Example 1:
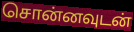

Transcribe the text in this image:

சொன்னவுடன்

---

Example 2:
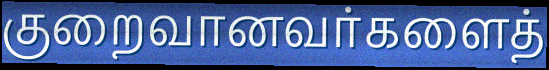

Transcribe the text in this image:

குறைவானவர்களைத்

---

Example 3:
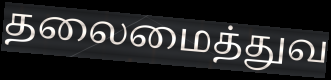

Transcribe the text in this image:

தலைமைத்துவ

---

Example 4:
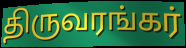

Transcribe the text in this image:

திருவரங்கர்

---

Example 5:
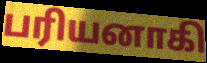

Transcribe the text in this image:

பரியனாகி